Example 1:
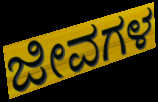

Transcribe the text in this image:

ಜೀವಗಳ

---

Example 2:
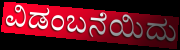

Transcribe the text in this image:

ವಿಡಂಬನೆಯಿದು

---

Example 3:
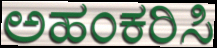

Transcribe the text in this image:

ಅಹಂಕರಿಸಿ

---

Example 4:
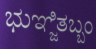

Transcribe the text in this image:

ಭುಞ್ಜಿತಬ್ಬಂ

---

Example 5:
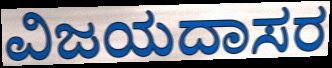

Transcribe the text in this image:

ವಿಜಯದಾಸರ